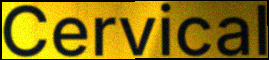
Cervical